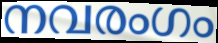
നവരംഗം